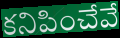
కనిపించేవే